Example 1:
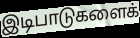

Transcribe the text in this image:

இடிபாடுகளைக்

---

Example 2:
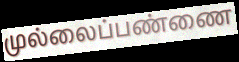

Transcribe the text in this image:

முல்லைப்பண்ணை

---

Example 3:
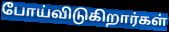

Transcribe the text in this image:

போய்விடுகிறார்கள்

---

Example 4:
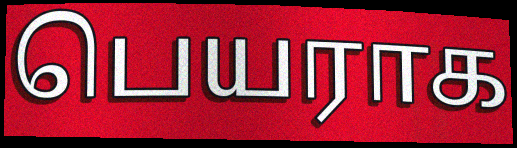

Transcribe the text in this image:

பெயராக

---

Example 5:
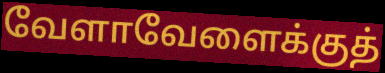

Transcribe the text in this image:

வேளாவேளைக்குத்